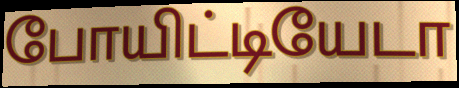
போயிட்டியேடா